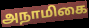
அநாமிகை